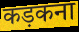
कड़कना